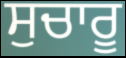
ਸੁਚਾਰੂ